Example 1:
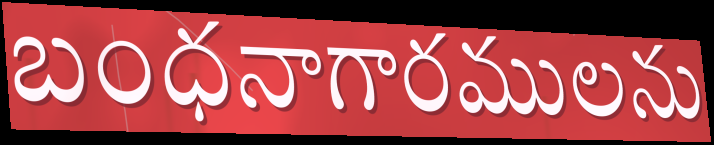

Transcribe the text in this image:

బంధనాగారములను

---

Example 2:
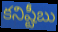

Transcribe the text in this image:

కనిష్టీబు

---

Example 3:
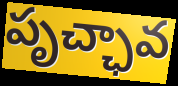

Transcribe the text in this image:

పృచ్ఛావ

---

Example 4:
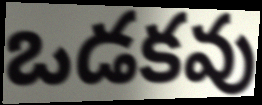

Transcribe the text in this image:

ఒడకవు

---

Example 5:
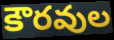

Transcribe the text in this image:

కౌరవుల